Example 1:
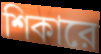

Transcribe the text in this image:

শিকারে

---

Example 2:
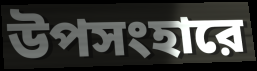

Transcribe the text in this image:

উপসংহারে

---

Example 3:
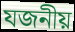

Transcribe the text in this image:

যজনীয়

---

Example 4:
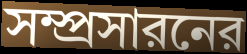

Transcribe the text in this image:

সম্প্রসারনের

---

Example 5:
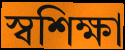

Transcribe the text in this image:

স্বশিক্ষা